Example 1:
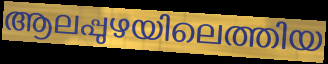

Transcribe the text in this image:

ആലപ്പുഴയിലെത്തിയ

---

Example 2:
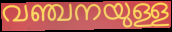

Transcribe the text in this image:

വഞ്ചനയുള്ള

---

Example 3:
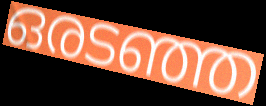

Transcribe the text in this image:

ഒരടഞ്ഞ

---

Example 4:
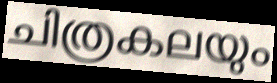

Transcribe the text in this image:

ചിത്രകലയും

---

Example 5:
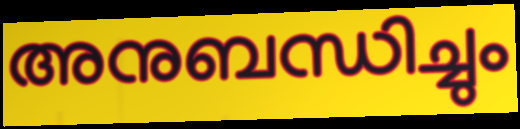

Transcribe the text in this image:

അനുബന്ധിച്ചും